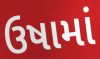
ઉષામાં